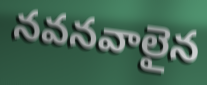
నవనవాలైన